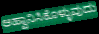
ಆಹ್ವಾನಿಸಿಕೊಳ್ಳುವುದು